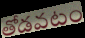
తోడవటం